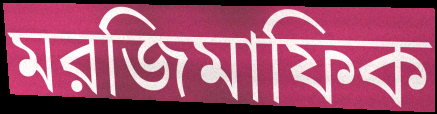
মরজিমাফিক